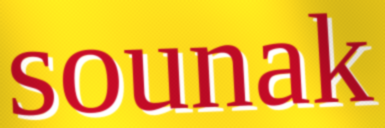
sounak